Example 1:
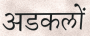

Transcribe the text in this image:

अडकलों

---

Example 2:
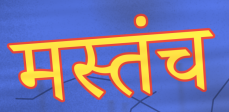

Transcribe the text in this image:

मस्तंच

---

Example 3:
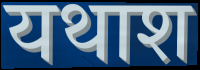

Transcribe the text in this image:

यथाश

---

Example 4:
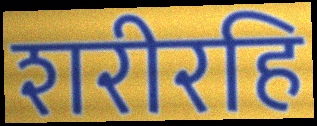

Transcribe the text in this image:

शरीरहि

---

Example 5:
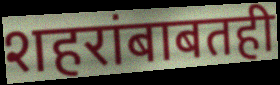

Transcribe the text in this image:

शहरांबाबतही